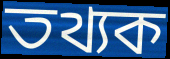
তথ্যক